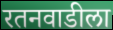
रतनवाडीला